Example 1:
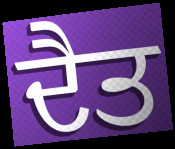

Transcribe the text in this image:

ਦੈਤ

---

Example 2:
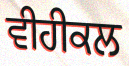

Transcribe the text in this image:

ਵੀਹੀਕਲ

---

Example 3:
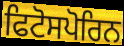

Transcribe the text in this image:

ਫਿਟੋਸਪੋਰਿਨ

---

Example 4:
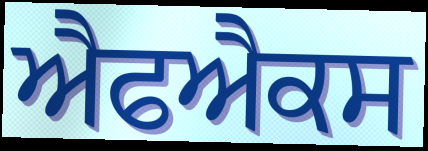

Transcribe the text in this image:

ਐਫਐਕਸ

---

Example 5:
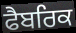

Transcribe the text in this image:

ਫੈਬਰਿਕ